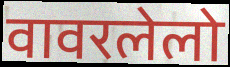
वावरलेलो